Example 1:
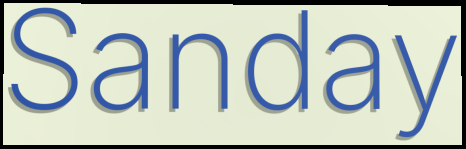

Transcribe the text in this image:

Sanday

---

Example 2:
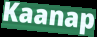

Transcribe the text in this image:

Kaanap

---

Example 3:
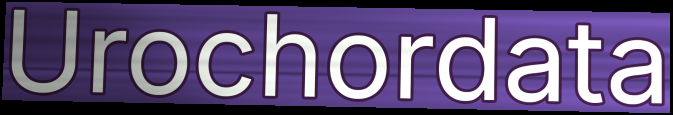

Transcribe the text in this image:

Urochordata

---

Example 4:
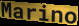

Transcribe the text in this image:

Marino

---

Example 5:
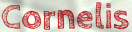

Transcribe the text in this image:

Cornelis